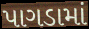
પાગડામાં